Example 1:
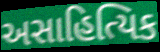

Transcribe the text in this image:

અસાહિત્યિક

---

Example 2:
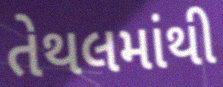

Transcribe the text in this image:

તેથલમાંથી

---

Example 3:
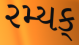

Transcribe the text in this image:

રમ્યક્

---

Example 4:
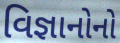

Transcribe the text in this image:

વિજ્ઞાનોનો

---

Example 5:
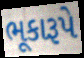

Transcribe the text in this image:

ભૂકારૂપે